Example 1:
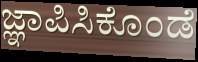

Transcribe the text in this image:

ಜ್ಞಾಪಿಸಿಕೊಂಡೆ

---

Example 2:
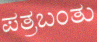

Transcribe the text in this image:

ಪತ್ರಬಂತು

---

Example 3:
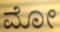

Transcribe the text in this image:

ಮೋ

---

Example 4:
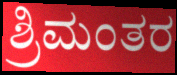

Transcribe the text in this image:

ಶ್ರಿಮಂತರ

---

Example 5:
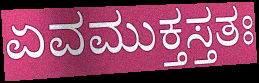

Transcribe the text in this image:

ಏವಮುಕ್ತಸ್ತತಃ